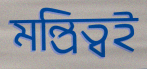
মন্ত্রিত্বই